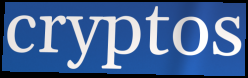
cryptos